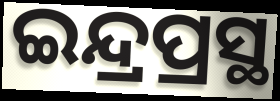
ଇନ୍ଦ୍ରପ୍ରସ୍ଥ